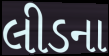
લીડના